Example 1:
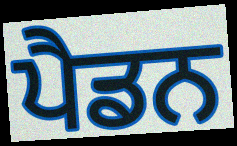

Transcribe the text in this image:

ਪੈਡਨ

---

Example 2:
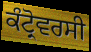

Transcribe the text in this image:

ਕੰਟ੍ਰੋਵਰਸੀ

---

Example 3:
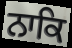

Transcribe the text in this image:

ਨਾਕਿ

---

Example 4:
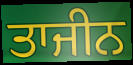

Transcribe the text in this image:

ਤਾਜੀਨ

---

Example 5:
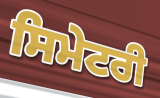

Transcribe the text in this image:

ਸਿਮੇਟਰੀ